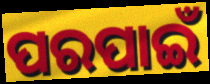
ପରପାଇଁ